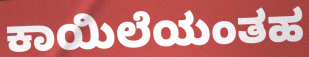
ಕಾಯಿಲೆಯಂತಹ